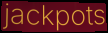
jackpots